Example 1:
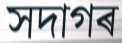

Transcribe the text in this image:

সদাগৰ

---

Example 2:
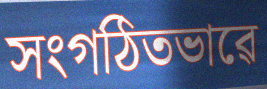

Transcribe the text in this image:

সংগঠিতভাৱে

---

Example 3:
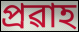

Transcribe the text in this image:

প্ৰৱাহ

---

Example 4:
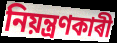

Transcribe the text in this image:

নিয়ন্ত্ৰণকাৰী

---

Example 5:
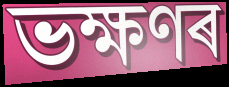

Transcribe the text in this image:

ভক্ষণৰ